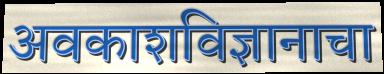
अवकाशविज्ञानाचा